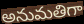
అనుమతిగా